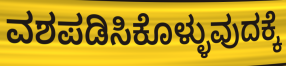
ವಶಪಡಿಸಿಕೊಳ್ಳುವುದಕ್ಕೆ